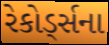
રેકોર્ડ્સના